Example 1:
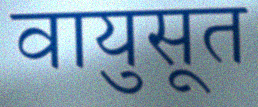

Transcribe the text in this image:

वायुसूत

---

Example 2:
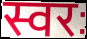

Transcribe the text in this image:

स्वरः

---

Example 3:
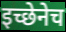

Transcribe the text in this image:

इच्छेनेच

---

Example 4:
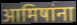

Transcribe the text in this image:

आमिषांना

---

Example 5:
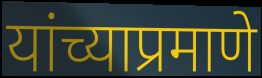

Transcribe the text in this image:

यांच्याप्रमाणे